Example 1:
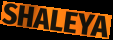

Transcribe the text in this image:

SHALEYA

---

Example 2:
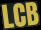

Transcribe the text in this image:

LCB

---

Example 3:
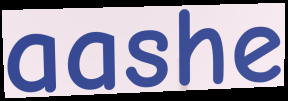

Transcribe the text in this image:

aashe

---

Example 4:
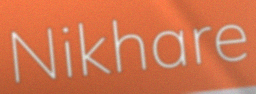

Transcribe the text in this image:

Nikhare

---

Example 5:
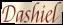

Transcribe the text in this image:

Dashiel